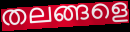
തലങ്ങളെ